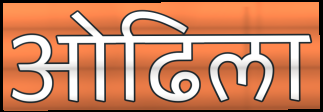
ओढिला